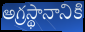
అగ్రస్థానానికి